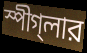
স্পীগ্‌লার